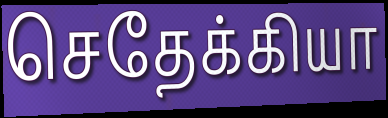
செதேக்கியா